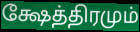
க்ஷேத்திரமும்